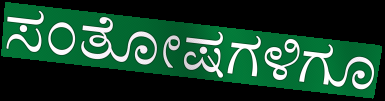
ಸಂತೋಷಗಳಿಗೂ